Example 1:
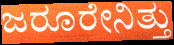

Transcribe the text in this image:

ಜರೂರೇನಿತ್ತು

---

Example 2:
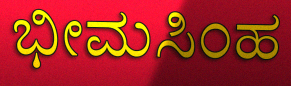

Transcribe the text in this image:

ಭೀಮಸಿಂಹ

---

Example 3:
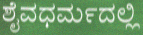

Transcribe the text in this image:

ಶೈವಧರ್ಮದಲ್ಲಿ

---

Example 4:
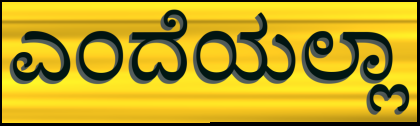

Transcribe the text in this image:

ಎಂದೆಯಲ್ಲಾ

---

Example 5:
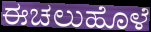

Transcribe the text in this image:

ಈಚಲುಹೊಳೆ